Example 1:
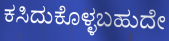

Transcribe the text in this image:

ಕಸಿದುಕೊಳ್ಳಬಹುದೇ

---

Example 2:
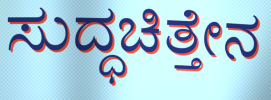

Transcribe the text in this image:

ಸುದ್ಧಚಿತ್ತೇನ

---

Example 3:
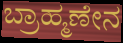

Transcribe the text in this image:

ಬ್ರಾಹ್ಮಣೇನ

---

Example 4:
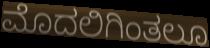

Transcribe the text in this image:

ಮೊದಲಿಗಿಂತಲೂ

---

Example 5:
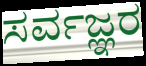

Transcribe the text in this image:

ಸರ್ವಜ್ಞರ